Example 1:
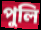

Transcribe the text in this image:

পুলি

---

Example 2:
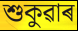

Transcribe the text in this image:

শুকুৱাৰ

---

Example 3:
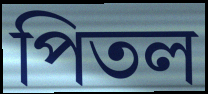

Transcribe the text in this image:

পিতল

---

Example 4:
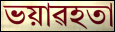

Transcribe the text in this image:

ভয়াৱহতা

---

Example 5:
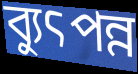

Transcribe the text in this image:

ব্যুৎপন্ন